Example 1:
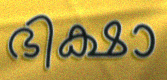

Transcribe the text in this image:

ഭിക്ഷാ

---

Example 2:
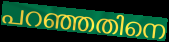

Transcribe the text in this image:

പറഞ്ഞതിനെ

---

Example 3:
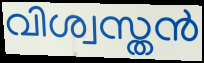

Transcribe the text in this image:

വിശ്വസ്തൻ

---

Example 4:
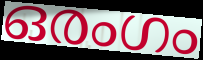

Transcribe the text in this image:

ഒരംഗം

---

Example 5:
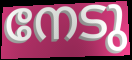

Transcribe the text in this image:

നേടു